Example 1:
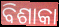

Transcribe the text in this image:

ବିଶାକା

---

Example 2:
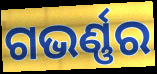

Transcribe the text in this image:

ଗଭର୍ଣ୍ଣର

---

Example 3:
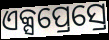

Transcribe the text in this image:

ଏକ୍ସପ୍ରେସ୍ରେ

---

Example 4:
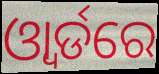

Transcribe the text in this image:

ଓ୍ବାର୍ଡରେ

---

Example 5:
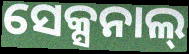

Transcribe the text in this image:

ସେକ୍ସନାଲ୍